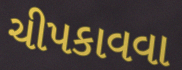
ચીપકાવવા